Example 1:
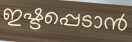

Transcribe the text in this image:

ഇഷ്ടപ്പെടാൻ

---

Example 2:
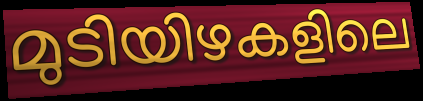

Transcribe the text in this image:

മുടിയിഴകളിലെ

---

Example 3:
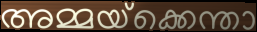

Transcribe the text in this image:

അമ്മയ്‌ക്കെന്താ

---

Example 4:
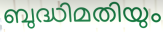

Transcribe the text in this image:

ബുദ്ധിമതിയും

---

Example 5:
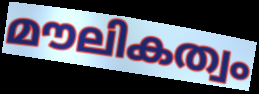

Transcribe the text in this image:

മൗലികത്വം